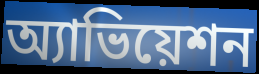
অ্যাভিয়েশন